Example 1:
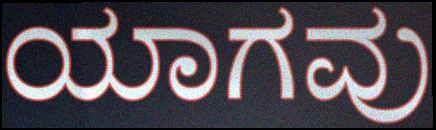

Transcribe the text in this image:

ಯಾಗವು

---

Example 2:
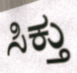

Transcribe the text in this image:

ಸಿಕ್ತು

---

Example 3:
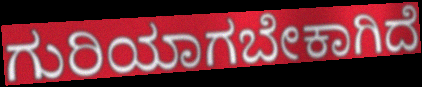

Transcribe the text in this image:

ಗುರಿಯಾಗಬೇಕಾಗಿದೆ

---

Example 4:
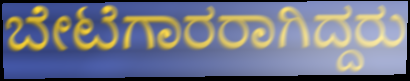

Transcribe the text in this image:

ಬೇಟೆಗಾರರಾಗಿದ್ದರು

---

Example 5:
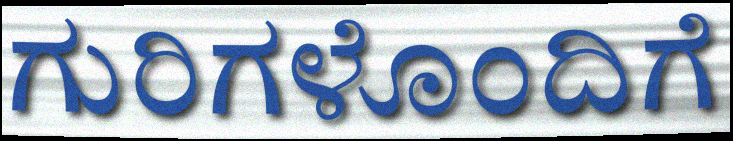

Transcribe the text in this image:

ಗುರಿಗಳೊಂದಿಗೆ